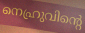
നെഹ്രുവിന്റെ